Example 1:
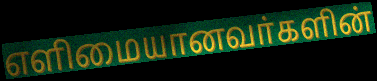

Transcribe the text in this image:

எளிமையானவர்களின்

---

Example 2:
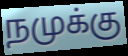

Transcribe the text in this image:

நமுக்கு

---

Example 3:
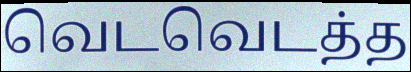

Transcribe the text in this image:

வெடவெடத்த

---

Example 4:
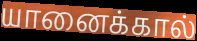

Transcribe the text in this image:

யானைக்கால்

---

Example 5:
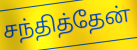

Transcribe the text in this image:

சந்தித்தேன்